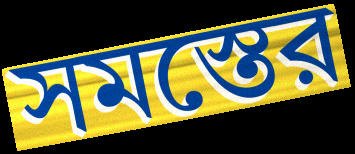
সমস্তের